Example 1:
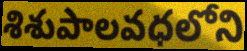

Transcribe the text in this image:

శిశుపాలవధలోని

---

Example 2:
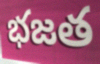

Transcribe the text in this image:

భజత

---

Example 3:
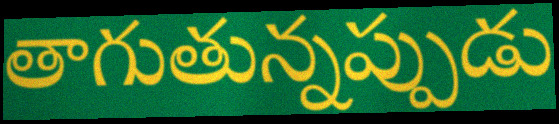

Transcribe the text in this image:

తాగుతున్నప్పుడు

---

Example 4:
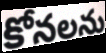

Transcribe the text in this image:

కోనలను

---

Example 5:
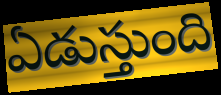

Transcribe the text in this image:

ఏడుస్తుంది